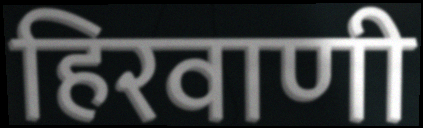
हिरवाणी